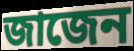
জাজেন